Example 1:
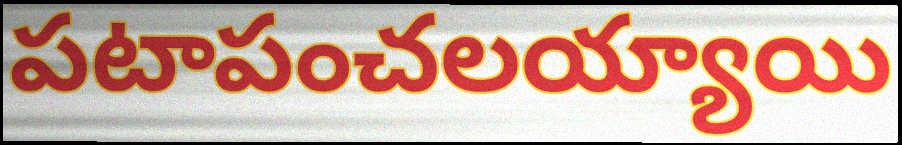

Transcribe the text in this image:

పటాపంచలయ్యాయి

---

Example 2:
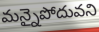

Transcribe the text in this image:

మన్నైపోదువని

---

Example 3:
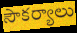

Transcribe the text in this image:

సౌకర్యాలు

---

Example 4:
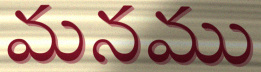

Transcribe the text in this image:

మనము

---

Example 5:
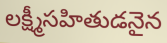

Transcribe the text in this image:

లక్ష్మీసహితుడనైన